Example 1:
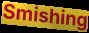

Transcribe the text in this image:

Smishing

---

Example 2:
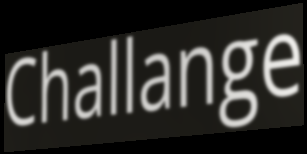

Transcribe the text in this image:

Challange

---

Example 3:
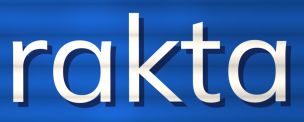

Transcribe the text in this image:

rakta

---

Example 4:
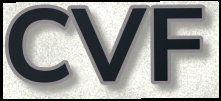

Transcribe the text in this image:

CVF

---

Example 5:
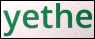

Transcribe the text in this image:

yethe